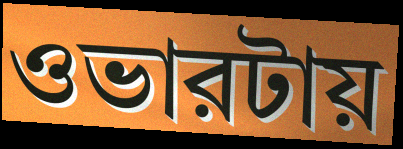
ওভারটায়